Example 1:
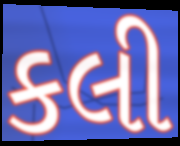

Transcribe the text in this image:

કલી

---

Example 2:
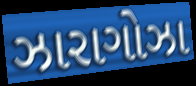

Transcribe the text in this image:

ઝારાગોઝા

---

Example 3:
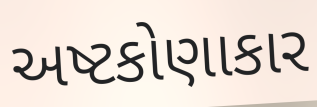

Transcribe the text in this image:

અષ્ટકોણાકાર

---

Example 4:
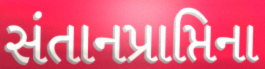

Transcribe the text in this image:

સંતાનપ્રાપ્તિના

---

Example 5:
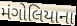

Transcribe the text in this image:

મંગોલિયાના